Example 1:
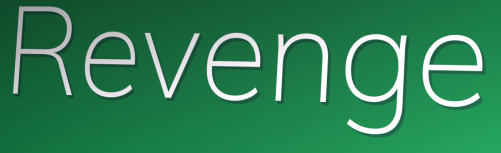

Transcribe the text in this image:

Revenge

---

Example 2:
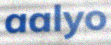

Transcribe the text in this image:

aalyo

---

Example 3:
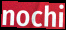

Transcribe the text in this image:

nochi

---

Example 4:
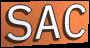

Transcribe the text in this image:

SAC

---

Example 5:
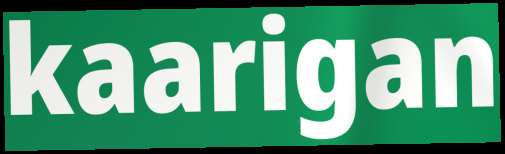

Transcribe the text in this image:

kaarigan